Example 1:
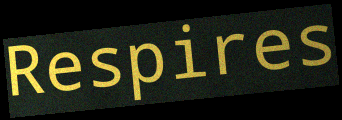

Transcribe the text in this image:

Respires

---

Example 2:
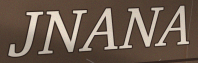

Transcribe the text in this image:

JNANA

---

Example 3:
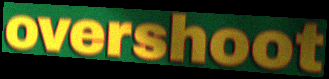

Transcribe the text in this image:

overshoot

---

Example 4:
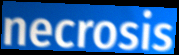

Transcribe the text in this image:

necrosis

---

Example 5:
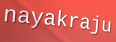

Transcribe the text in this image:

nayakraju